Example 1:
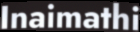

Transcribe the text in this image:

Inaimathi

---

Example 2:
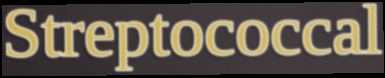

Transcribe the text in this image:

Streptococcal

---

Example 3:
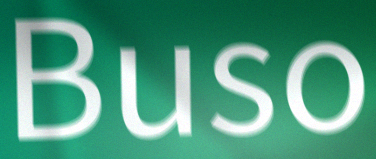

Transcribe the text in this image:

Buso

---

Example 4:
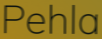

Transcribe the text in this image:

Pehla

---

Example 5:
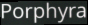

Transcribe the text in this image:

Porphyra